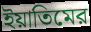
ইয়াতিমের